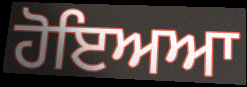
ਹੋਇਅਆ